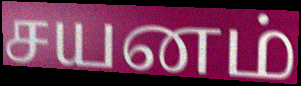
சயனம்